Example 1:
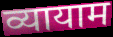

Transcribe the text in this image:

व्यायाम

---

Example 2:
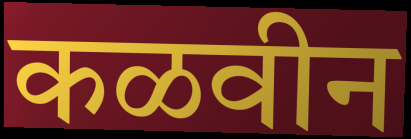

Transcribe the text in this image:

कळवीन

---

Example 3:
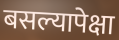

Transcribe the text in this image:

बसल्यापेक्षा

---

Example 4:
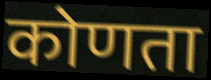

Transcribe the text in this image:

कोणता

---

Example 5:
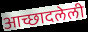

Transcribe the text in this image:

आच्छादलेली